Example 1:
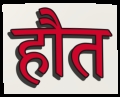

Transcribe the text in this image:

हौत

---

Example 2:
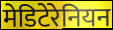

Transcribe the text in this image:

मेडिटेरेनियन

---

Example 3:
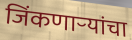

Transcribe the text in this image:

जिंकणाऱ्यांचा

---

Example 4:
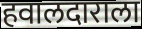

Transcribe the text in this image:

हवालदाराला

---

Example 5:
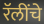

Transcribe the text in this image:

रॅलींचे